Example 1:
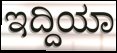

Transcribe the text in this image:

ಇದ್ದಿಯಾ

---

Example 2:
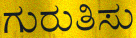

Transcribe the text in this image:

ಗುರುತಿಸು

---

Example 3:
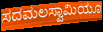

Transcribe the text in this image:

ಸದಮಲಸ್ವಾಮಿಯೂ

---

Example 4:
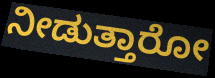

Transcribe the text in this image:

ನೀಡುತ್ತಾರೋ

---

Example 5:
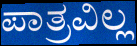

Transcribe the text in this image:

ಪಾತ್ರವಿಲ್ಲ